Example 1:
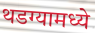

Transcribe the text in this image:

थडग्यामध्ये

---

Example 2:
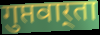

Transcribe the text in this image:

गुप्तवार्ता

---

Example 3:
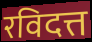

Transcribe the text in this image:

रविदत्त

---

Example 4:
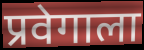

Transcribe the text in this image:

प्रवेगाला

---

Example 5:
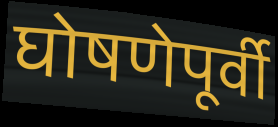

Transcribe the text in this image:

घोषणेपूर्वी